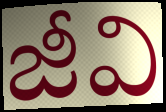
జీవి